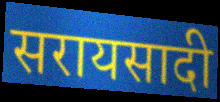
सरायसादी